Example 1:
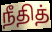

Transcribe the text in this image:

நீதித்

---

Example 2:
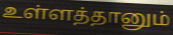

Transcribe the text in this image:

உள்ளத்தானும்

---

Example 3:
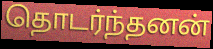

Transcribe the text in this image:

தொடர்ந்தனன்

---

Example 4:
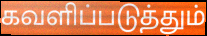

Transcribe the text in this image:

கவளிப்படுத்தும்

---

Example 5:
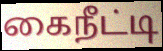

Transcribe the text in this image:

கைநீட்டி